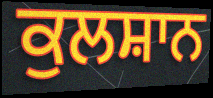
ਕੁਲਸ਼ਾਨ